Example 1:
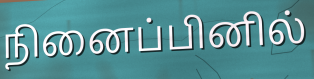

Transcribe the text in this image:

நினைப்பினில்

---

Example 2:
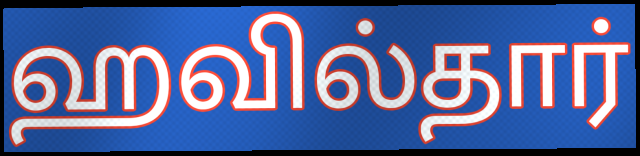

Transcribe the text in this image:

ஹவில்தார்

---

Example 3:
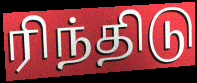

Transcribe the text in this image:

ரிந்திடு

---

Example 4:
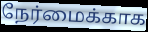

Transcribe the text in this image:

நேர்மைக்காக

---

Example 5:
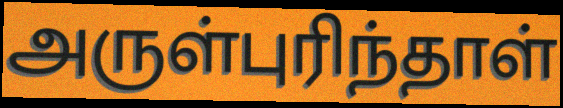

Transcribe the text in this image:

அருள்புரிந்தாள்